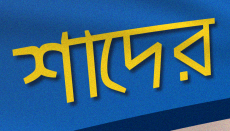
শাদের